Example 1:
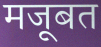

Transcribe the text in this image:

मजूबत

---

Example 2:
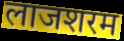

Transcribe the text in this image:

लाजशरम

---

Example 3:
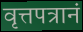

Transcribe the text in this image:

वृत्तपत्रानं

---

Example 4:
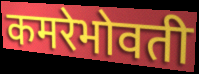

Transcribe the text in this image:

कमरेभोवती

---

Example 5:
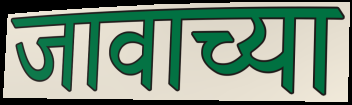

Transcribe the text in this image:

जावाच्या